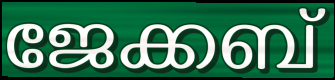
ജേക്കബ്